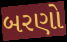
બરણો